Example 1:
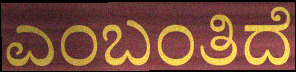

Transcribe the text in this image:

ಎಂಬಂತಿದೆ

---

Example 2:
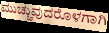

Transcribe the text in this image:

ಮುಚ್ಚುವುದರೊಳಗಾಗಿ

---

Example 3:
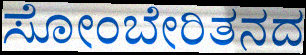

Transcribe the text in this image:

ಸೋಂಬೇರಿತನದ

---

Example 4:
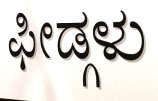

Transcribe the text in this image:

ಫೀಡ್ಗಳು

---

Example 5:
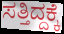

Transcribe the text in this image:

ಸತ್ತಿದ್ದಕ್ಕೆ